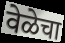
वेळेचा